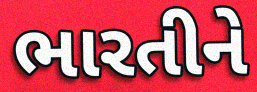
ભારતીને